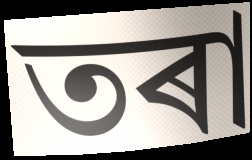
তৰা